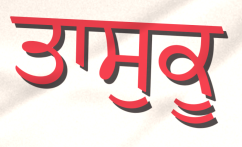
ਤਾਸੁਕੂ